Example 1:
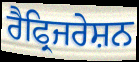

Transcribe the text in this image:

ਰੈਫ੍ਰਿਜਰੇਸ਼ਨ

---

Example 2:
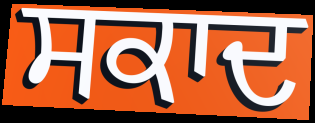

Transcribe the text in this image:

ਸਕਾਦ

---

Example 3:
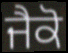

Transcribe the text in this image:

ਜੈਕੋ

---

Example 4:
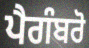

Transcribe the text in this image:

ਪੈਗੰਬਰੋ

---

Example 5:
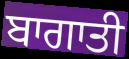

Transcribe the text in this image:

ਬਾਗਾਤੀ